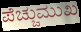
ಪೆಚ್ಚುಮುಖ